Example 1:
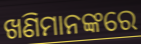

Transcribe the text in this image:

ଖଣିମାନଙ୍କରେ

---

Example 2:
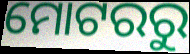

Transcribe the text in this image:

ମୋଟରରୁ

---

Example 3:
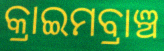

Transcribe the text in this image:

କ୍ରାଇମବ୍ରାଞ୍ଚ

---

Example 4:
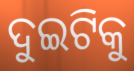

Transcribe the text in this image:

ଦୁଇଟିକୁ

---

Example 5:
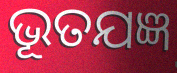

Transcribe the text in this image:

ଭୂତଯଜ୍ଞ